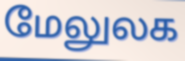
மேலுலக